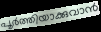
പൂർത്തിയാക്കുവാൻ